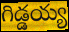
గిడ్డయ్య